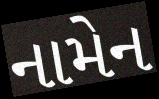
નામેન